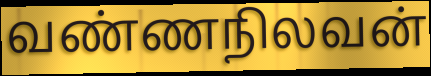
வண்ணநிலவன்